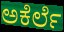
ಅಕೆರ್ಲೆ